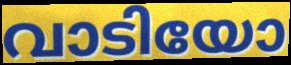
വാടിയോ